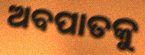
ଅବପାତକୁ